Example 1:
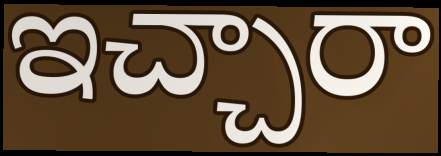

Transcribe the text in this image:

ఇచ్చారా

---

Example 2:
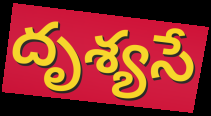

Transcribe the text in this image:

దృశ్యసే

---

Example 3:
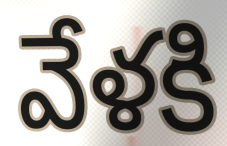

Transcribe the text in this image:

వేళకి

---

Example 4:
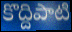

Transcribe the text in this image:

కొద్దిపాటి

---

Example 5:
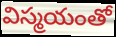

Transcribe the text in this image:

విస్మయంతో